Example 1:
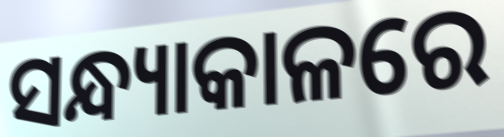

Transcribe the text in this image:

ସନ୍ଧ୍ୟାକାଳରେ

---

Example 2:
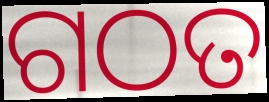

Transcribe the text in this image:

ଗଠତ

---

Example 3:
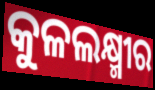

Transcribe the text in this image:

କୁଳଲକ୍ଷ୍ମୀର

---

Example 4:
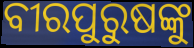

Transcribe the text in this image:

ବୀରପୁରୁଷଙ୍କୁ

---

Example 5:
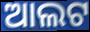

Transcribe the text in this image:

ଆଲଟ